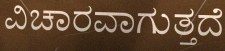
ವಿಚಾರವಾಗುತ್ತದೆ